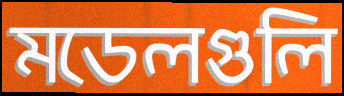
মডেলগুলি